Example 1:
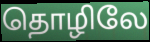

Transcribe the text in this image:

தொழிலே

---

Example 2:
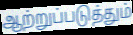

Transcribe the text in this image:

ஆற்றுப்படுத்தும்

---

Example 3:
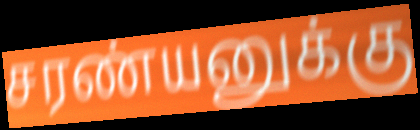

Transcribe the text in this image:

சரண்யனுக்கு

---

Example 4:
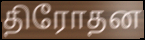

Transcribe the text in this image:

திரோதன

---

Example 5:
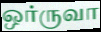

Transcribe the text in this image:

ஒர்ருவா